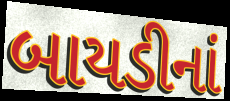
બાયડીનાં